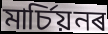
মাৰ্চিয়নৰ